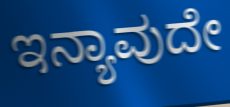
ಇನ್ಯಾವುದೇ